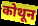
कोथून